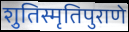
श्रुतिस्मृतिपुराणे